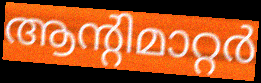
ആന്റിമാറ്റർ